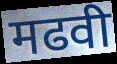
मढवी